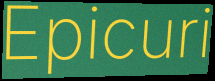
Epicuri